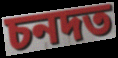
চনদত